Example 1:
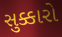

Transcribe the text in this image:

સુક્કારો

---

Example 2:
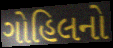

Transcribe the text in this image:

ગોહિલનો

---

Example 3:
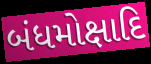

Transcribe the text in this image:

બંધમોક્ષાદિ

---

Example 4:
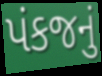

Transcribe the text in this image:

પંકજનું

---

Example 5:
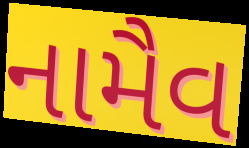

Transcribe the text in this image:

નામૈવ